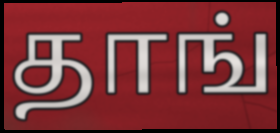
தாங்